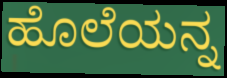
ಹೊಲೆಯನ್ನ